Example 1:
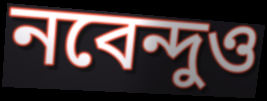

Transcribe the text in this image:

নবেন্দুও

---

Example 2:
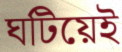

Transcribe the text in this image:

ঘটিয়েই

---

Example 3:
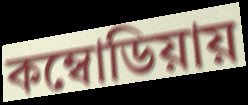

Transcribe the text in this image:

কম্বোডিয়ায়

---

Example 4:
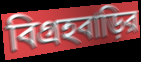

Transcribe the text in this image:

বিগ্রহবাড়ির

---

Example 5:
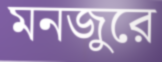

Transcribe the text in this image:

মনজুরে